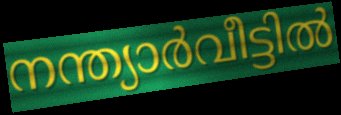
നന്ത്യാർവീട്ടിൽ